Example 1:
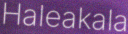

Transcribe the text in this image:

Haleakala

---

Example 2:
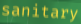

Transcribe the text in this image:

sanitary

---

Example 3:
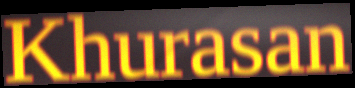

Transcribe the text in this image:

Khurasan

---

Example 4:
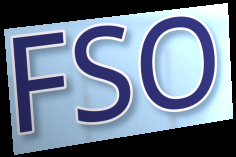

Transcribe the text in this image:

FSO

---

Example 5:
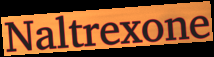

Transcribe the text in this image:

Naltrexone